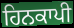
ਹਿਨਕਾਪੀ